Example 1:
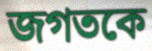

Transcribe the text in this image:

জগতকে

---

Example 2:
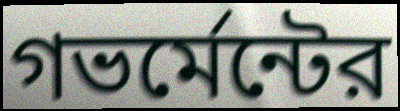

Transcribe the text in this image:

গভর্মেন্টের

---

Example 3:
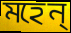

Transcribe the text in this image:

মহেন্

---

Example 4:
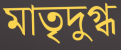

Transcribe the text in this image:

মাতৃদুগ্ধ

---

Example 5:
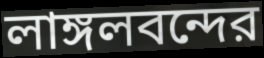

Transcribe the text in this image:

লাঙ্গলবন্দের